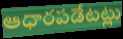
ఆధారపడేటట్లు